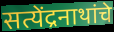
सत्येंद्रनाथांचे